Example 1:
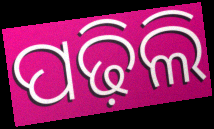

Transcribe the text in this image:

ପଢ଼ିଲି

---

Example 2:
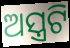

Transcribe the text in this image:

ଅସ୍ତ୍ରଟି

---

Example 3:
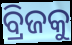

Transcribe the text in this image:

ବ୍ରିଜକୁ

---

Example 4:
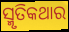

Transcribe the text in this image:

ସ୍ମୃତିକଥାର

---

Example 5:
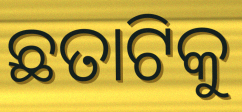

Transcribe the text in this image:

ଛତାଟିକୁ